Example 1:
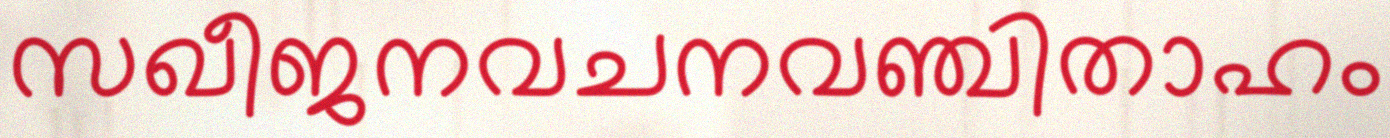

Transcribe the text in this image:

സഖീജനവചനവഞ്ചിതാഹം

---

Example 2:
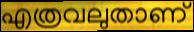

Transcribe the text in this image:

എത്രവലുതാണ്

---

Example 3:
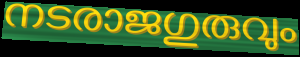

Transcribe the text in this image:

നടരാജഗുരുവും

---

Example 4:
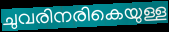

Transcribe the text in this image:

ചുവരിനരികെയുള്ള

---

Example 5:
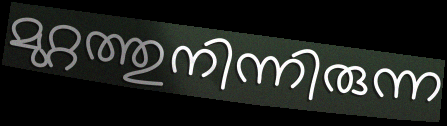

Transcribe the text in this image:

മുറ്റത്തുനിന്നിരുന്ന